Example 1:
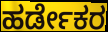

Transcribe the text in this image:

ಹರ್ಡೇಕರ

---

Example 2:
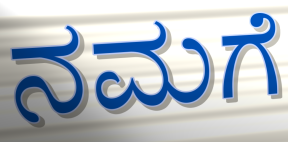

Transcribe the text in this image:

ನಮಗೆ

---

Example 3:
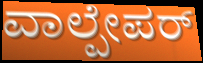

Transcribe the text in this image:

ವಾಲ್ಪೇಪರ್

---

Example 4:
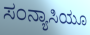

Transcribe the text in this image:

ಸಂನ್ಯಾಸಿಯೂ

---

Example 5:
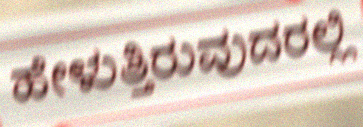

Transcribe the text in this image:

ಹೇಳುತ್ತಿರುವುದರಲ್ಲಿ